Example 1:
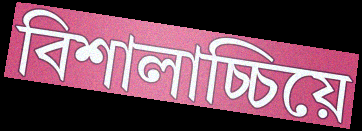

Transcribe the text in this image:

বিশালাচ্চিয়ে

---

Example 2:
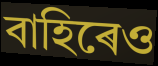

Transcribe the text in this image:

বাহিৰেও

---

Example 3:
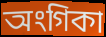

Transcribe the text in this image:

অংগিকা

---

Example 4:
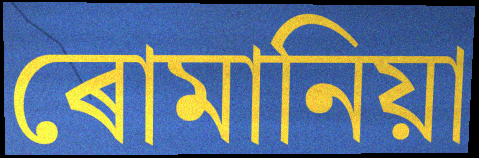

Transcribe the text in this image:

ৰোমানিয়া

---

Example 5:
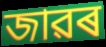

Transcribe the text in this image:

জাৱৰ